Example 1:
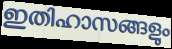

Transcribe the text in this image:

ഇതിഹാസങ്ങളും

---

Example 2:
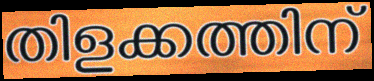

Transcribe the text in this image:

തിളക്കത്തിന്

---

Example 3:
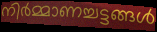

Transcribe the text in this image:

നിർമ്മാണച്ചട്ടങ്ങൾ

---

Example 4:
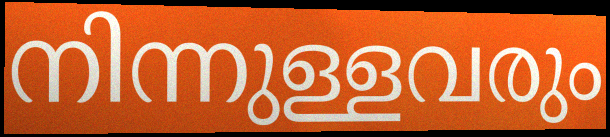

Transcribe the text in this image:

നിന്നുള്ളവരും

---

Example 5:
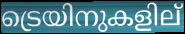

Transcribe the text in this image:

ട്രെയിനുകളില്